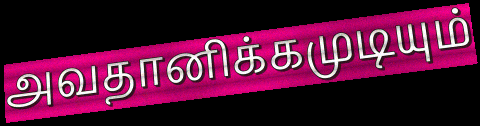
அவதானிக்கமுடியும்